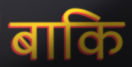
बाकि